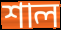
শাল